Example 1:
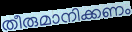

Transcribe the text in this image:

തീരുമാനിക്കണം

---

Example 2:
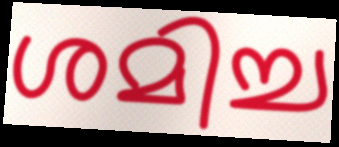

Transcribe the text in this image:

ശമിച്ച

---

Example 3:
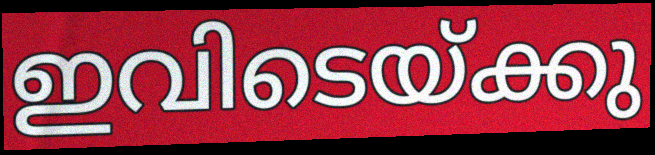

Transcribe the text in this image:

ഇവിടെയ്ക്കു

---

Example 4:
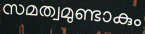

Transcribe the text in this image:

സമത്വമുണ്ടാകും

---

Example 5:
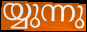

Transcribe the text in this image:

യ്യുന്നു